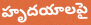
హృదయాలపై